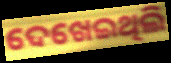
ଦେଖେଇଥିଲି